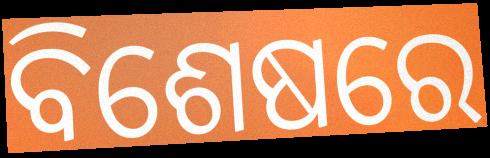
ବିଶେଷରେ